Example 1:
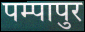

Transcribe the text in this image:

पम्पापुर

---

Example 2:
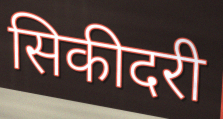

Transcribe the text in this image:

सिकीदरी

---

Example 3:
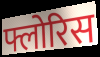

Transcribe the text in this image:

फ्लोरिस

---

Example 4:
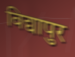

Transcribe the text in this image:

विद्यापुर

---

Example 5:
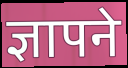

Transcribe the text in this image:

ज्ञापने